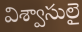
విశ్వాసులై